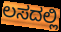
ಲಸದಲ್ಲಿ